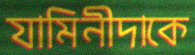
যামিনীদাকে